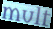
mult